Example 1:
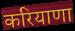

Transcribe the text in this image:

करियाणा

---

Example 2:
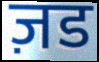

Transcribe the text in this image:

ज़ड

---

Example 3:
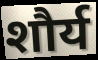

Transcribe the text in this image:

शौर्य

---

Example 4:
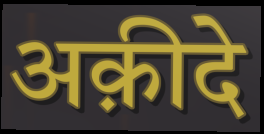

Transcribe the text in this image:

अक़ीदे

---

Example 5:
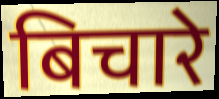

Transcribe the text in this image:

बिचारे